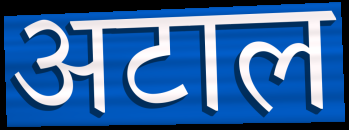
अटाल